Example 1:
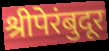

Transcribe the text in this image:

श्रीपेरंबुदूर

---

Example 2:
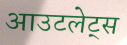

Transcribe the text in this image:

आउटलेट्स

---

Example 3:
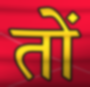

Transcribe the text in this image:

तों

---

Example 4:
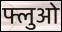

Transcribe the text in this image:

फ्लुओ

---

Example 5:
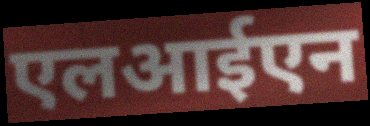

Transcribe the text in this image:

एलआईएन